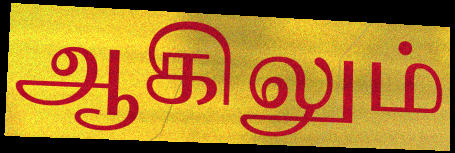
ஆகிலும்